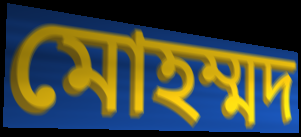
মোহম্মদ